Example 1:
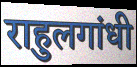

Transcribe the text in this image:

राहुलगांधी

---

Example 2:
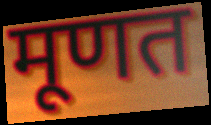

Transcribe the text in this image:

मूणत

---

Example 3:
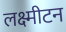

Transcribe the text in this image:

लक्ष्मीटन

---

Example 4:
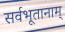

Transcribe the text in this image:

सर्वभूतानाम्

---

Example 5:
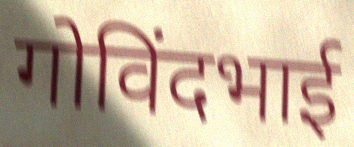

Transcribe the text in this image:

गोविंदभाई